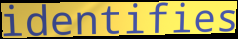
identifies